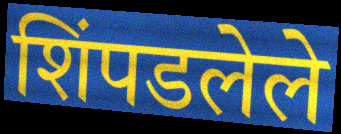
शिंपडलेले